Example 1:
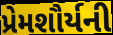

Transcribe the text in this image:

પ્રેમશૌર્યની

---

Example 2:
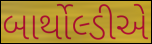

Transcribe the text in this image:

બાર્થોલ્ડીએ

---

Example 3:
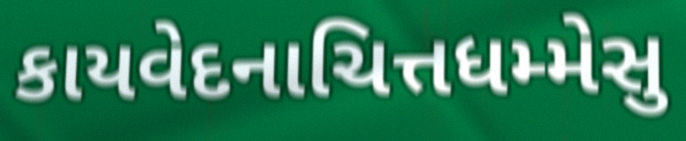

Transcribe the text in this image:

કાયવેદનાચિત્તધમ્મેસુ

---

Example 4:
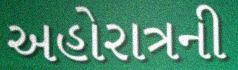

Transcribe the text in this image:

અહોરાત્રની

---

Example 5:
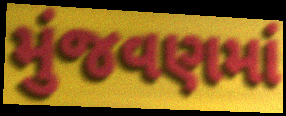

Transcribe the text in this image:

મુંજવણમાં